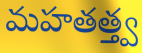
మహతత్త్వ